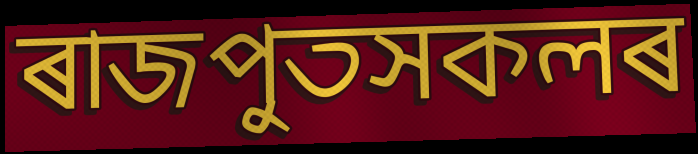
ৰাজপুতসকলৰ